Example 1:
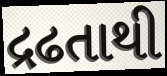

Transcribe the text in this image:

દ્રઢતાથી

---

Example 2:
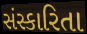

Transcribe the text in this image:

સંસ્કારિતા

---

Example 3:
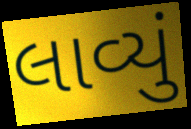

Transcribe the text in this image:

લાવ્યું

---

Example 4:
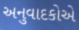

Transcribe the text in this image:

અનુવાદકોએ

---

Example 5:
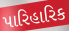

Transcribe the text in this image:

પારિહારિક